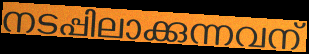
നടപ്പിലാക്കുന്നവന്